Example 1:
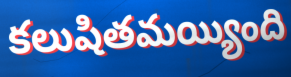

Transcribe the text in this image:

కలుషితమయ్యింది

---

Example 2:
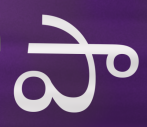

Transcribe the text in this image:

పా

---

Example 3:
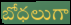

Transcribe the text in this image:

బోధలుగా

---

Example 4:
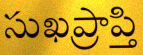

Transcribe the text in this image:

సుఖప్రాప్తి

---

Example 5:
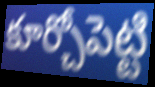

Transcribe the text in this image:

కూర్చోపెట్టి